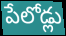
పేలోడ్లు